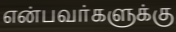
என்பவர்களுக்கு